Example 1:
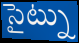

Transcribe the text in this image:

సైట్ను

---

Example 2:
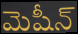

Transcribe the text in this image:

మెషీన్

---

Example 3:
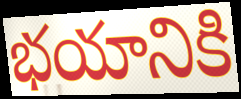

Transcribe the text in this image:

భయానికి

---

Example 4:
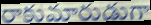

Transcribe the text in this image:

రాకుమారుడుగా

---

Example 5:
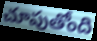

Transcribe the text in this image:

చూపుతోంది